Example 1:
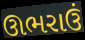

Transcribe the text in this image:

ઊભરાઉં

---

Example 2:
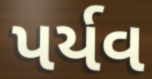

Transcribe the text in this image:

પર્યવ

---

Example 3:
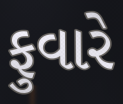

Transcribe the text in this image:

ફુવારે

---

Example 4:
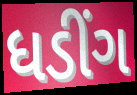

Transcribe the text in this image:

ધડીંગ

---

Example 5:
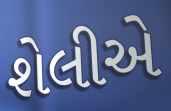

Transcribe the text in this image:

શેલીએ